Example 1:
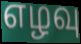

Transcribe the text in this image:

எழவு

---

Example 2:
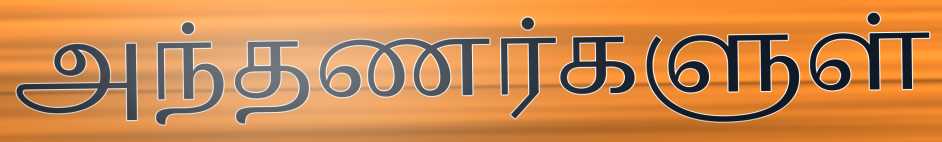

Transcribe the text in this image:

அந்தணர்களுள்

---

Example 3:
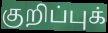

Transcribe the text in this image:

குறிப்புக்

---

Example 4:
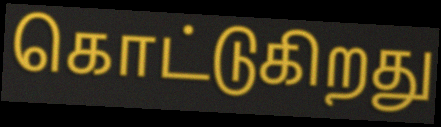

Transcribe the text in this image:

கொட்டுகிறது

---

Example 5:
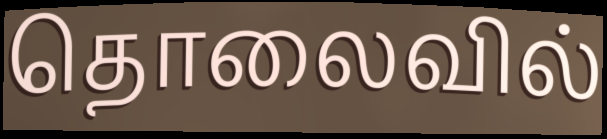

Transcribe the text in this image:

தொலைவில்